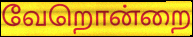
வேறொன்றை